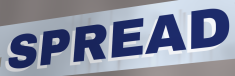
SPREAD